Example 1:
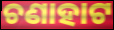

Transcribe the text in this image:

ଚଣାହାଟ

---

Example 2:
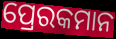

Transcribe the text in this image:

ପ୍ରେରକମାନ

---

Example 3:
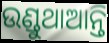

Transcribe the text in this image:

ଉଣ୍ଡୁଥାଆନ୍ତି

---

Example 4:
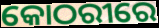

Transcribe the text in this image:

କୋଠରୀରେ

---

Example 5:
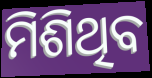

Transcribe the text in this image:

ମିଶିଥିବ